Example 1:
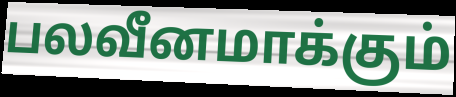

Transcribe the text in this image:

பலவீனமாக்கும்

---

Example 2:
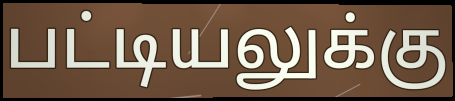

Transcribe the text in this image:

பட்டியலுக்கு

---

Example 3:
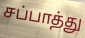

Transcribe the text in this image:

சப்பாத்து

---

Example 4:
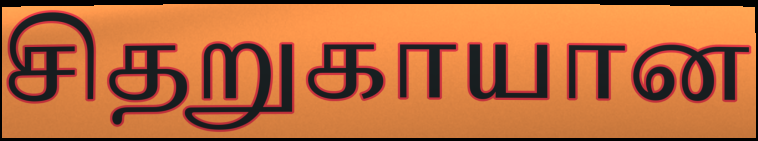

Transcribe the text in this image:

சிதறுகாயான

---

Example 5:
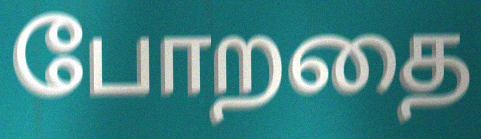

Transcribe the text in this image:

போறதை